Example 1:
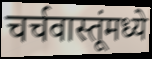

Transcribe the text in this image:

चर्चवास्तूंमध्ये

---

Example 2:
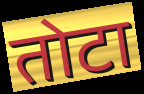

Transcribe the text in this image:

तोटा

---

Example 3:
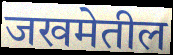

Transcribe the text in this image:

जखमेतील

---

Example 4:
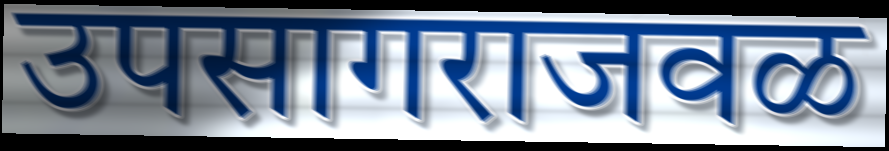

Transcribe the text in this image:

उपसागराजवळ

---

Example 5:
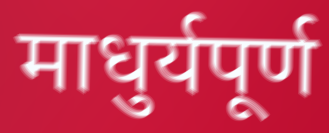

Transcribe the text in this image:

माधुर्यपूर्ण